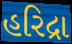
હરિદ્રા